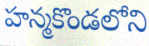
హన్మకొండలోని